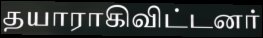
தயாராகிவிட்டனர்